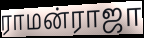
ராமன்ராஜா